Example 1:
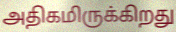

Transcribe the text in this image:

அதிகமிருக்கிறது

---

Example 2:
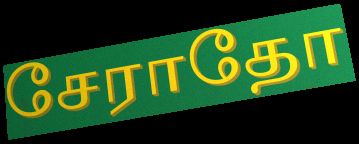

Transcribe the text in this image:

சேராதோ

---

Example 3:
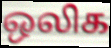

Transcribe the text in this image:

ஒலிக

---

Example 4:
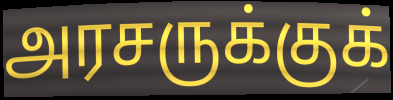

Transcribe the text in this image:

அரசருக்குக்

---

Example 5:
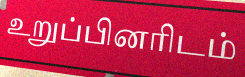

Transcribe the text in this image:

உறுப்பினரிடம்